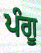
ਪੰਗੂ